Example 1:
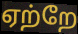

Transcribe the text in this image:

ஏற்றே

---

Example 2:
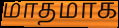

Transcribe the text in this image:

மாதமாக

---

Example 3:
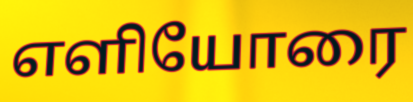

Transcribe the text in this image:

எளியோரை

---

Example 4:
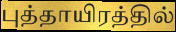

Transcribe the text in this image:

புத்தாயிரத்தில்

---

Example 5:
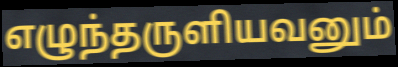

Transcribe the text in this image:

எழுந்தருளியவனும்